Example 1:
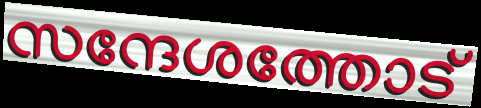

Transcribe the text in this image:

സന്ദേശത്തോട്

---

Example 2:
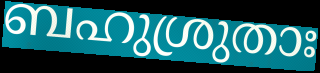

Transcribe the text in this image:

ബഹുശ്രുതാഃ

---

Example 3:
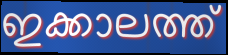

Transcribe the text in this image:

ഇക്കാലത്ത്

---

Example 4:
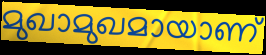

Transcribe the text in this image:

മുഖാമുഖമായാണ്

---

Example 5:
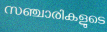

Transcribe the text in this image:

സഞ്ചാരികളുടെ